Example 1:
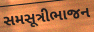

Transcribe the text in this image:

સમસૂત્રીભાજન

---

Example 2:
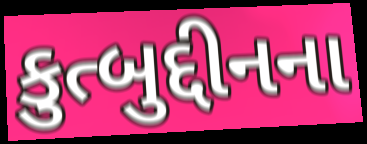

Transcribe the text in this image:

કુત્બુદ્દીનના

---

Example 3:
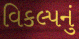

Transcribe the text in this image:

વિકલ્પનું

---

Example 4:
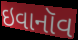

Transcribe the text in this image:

ઇવાનૉવ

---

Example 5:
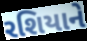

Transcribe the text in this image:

રશિયાને